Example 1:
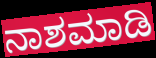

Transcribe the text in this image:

ನಾಶಮಾಡಿ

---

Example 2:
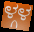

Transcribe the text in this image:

ಳ್ಗಳ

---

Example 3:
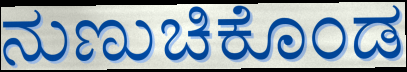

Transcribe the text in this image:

ನುಣುಚಿಕೊಂಡ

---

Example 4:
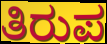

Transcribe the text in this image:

ತಿರುಪ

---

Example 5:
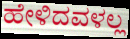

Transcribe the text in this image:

ಹೇಳಿದವಳಲ್ಲ